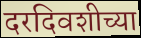
दरदिवशीच्या